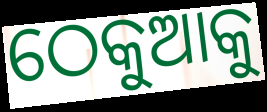
ଠେକୁଆକୁ